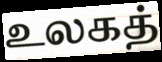
உலகத்